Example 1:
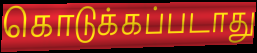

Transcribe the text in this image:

கொடுக்கப்படாது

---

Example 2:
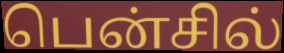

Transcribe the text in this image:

பென்சில்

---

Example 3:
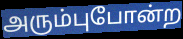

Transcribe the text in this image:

அரும்புபோன்ற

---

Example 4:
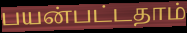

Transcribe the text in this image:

பயன்பட்டதாம்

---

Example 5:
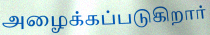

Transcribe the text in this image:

அழைக்கப்படுகிறார்